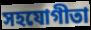
সহযোগীতা